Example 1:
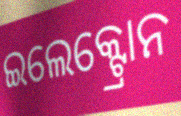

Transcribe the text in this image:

ଇଲେକ୍ଟ୍ରୋନ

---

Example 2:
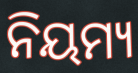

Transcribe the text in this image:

ନିୟମ୍ୟ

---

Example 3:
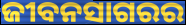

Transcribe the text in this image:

ଜୀବନସାଗରର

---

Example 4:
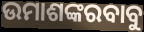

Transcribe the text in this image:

ଉମାଶଙ୍କରବାବୁ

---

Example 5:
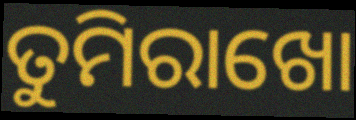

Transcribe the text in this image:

ତୁମିରାଖୋ